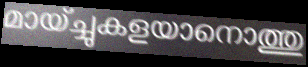
മായ്ച്ചുകളയാനൊത്തു